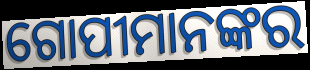
ଗୋପୀମାନଙ୍କର